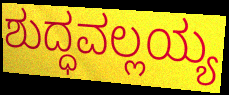
ಶುದ್ಧವಲ್ಲಯ್ಯ